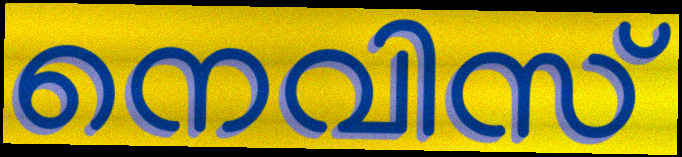
നെവിസ്